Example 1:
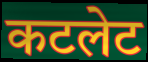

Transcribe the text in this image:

कटलेट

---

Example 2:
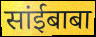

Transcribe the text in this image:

सांईबाबा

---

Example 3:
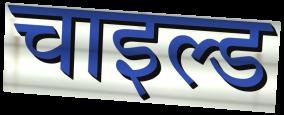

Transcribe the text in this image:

चाइल्ड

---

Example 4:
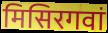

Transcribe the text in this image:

मिसिरगवां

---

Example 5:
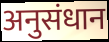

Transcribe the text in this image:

अनुसंधान